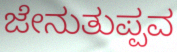
ಜೇನುತುಪ್ಪವ